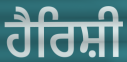
ਹੈਰਿਸ਼ੀ